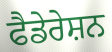
ਫੈਡੇਰੇਸ਼ਨ